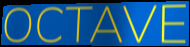
OCTAVE